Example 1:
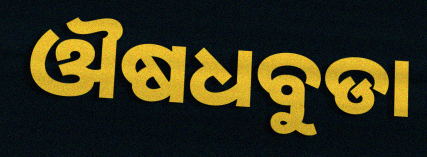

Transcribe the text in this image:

ଔଷଧବୁଡା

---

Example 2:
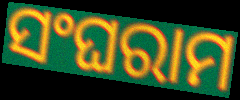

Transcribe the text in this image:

ସଂଘରାମ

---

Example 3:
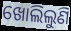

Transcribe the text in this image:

ଖୋଲିଲୁଣି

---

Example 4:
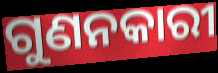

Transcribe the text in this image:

ଗୁଣନକାରୀ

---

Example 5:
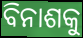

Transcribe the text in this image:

ବିନାଶକୁ